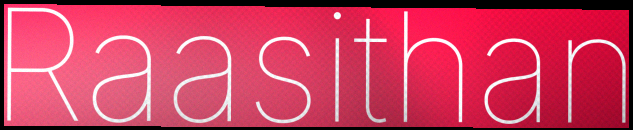
Raasithan